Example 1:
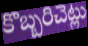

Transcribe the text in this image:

కొబ్బరిచెట్లు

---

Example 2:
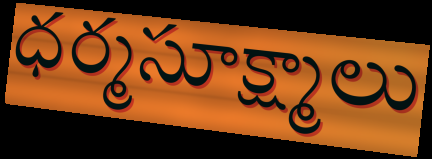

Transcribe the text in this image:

ధర్మసూక్ష్మాలు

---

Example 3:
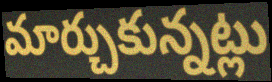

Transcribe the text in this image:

మార్చుకున్నట్లు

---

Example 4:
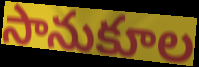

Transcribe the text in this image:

సానుకూల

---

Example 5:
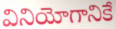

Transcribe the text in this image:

వినియోగానికే